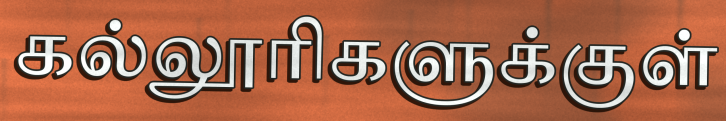
கல்லூரிகளுக்குள்